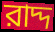
রাদ্দ